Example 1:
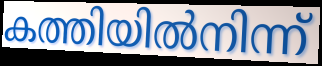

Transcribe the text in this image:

കത്തിയിൽനിന്ന്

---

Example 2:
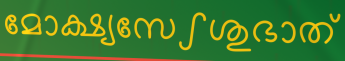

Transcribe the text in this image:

മോക്ഷ്യസേഽശുഭാത്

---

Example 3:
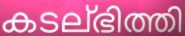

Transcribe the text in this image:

കടല്ഭിത്തി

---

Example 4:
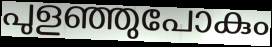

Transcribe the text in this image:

പുളഞ്ഞുപോകും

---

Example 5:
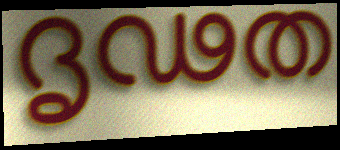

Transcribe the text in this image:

ദൃഢത